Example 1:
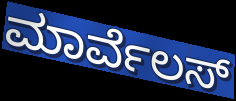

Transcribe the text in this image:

ಮಾರ್ವೆಲಸ್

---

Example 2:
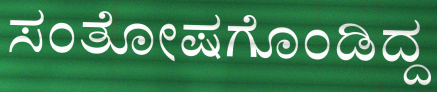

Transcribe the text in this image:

ಸಂತೋಷಗೊಂಡಿದ್ದ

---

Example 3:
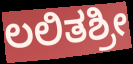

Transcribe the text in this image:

ಲಲಿತಶ್ರೀ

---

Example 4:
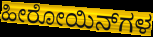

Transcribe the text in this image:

ಹೀರೋಯಿನ್‌ಗಳ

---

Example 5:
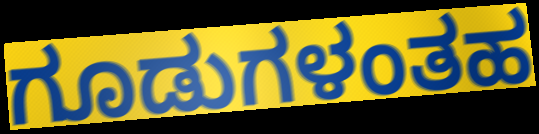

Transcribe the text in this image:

ಗೂಡುಗಳಂತಹ